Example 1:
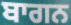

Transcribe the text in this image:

ਬਾਗਨ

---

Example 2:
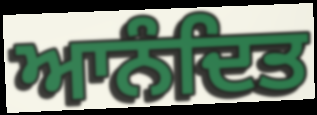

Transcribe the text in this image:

ਆਨੰਦਿਤ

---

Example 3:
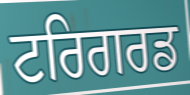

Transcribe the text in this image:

ਟਰਿਗਰਡ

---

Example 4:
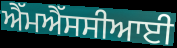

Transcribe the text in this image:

ਐੱਮਐੱਸਸੀਆਈ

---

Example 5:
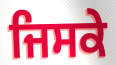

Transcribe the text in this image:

ਜਿਸਕੇ